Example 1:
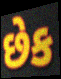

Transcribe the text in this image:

છેક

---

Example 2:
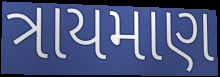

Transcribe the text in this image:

ત્રાયમાણ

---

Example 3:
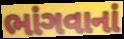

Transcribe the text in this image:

ભાંગવાનાં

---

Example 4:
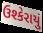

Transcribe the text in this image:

ઉશ્કેરાયું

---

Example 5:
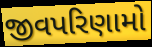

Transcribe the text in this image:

જીવપરિણામો